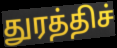
துரத்திச்